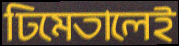
ঢিমেতালেই